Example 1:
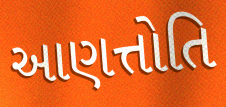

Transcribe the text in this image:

આણત્તોતિ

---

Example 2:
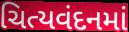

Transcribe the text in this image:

ચિત્યવંદનમાં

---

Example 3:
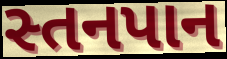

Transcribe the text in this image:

સ્તનપાન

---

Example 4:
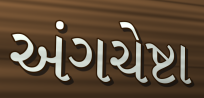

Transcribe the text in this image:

અંગચેષ્ટા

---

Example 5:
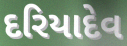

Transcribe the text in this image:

દરિયાદેવ